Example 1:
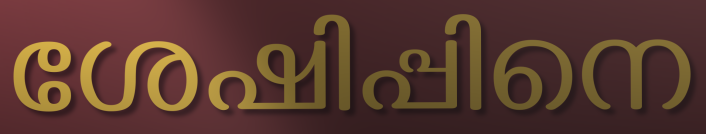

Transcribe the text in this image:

ശേഷിപ്പിനെ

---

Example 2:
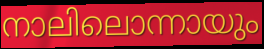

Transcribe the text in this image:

നാലിലൊന്നായും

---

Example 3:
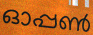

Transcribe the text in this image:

ഓപ്പൺ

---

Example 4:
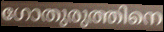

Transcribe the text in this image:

ഗോതുരുത്തിനെ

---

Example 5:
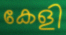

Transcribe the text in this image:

കേളി